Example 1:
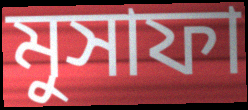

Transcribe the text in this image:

মুসাফা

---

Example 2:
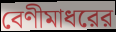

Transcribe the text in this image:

বেণীমাধরের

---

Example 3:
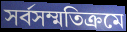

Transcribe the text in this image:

সর্বসম্মতিক্রমে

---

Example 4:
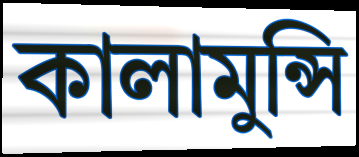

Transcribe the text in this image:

কালামুন্সি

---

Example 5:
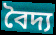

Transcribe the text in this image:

বৈদ্য